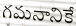
గమనానికే